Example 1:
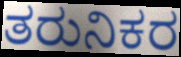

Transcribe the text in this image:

ತರುನಿಕರ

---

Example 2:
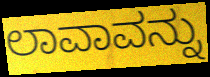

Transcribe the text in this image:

ಲಾವಾವನ್ನು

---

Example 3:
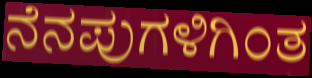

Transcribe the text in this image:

ನೆನಪುಗಳಿಗಿಂತ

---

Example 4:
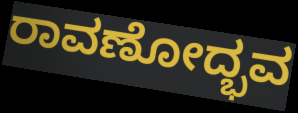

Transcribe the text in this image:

ರಾವಣೋದ್ಭವ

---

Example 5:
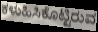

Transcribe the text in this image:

ಕಳುಹಿಸಿಕೊಟ್ಟಿರುವ